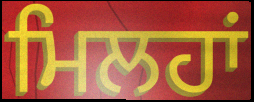
ਮਿਲਹਾਂ